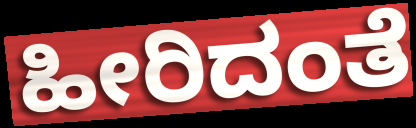
ಹೀರಿದಂತೆ